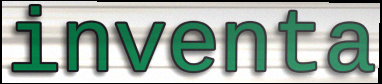
inventa